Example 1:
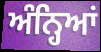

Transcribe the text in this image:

ਅੰਨ੍ਹਿਆਂ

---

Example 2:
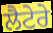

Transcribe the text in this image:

ਲੈਟੇਰੇ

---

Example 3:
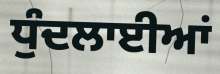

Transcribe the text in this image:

ਧੁੰਦਲਾਈਆਂ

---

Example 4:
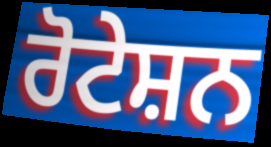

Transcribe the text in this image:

ਰੋਟੇਸ਼ਨ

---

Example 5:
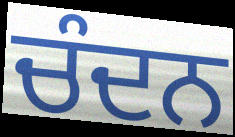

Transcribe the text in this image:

ਚੰਦਨ